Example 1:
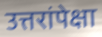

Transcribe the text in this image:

उत्तरांपेक्षा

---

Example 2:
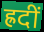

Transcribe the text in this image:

ह्रदीं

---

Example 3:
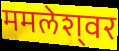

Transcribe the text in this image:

ममलेश्वर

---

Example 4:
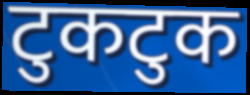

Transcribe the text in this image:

टुकटुक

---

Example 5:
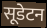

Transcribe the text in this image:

सूडेटन